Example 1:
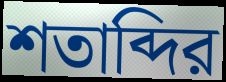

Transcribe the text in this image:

শতাব্দির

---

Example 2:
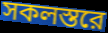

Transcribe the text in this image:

সকলস্তরে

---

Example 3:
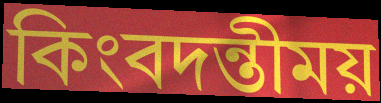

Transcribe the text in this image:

কিংবদন্তীময়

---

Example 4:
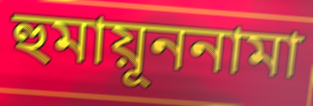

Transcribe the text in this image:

হুমায়ূননামা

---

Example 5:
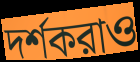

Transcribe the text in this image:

দর্শকরাও